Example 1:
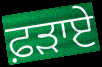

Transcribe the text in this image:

ਫ਼ੜਾਏ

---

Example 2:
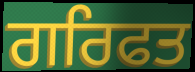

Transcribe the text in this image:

ਗਰਿਫਤ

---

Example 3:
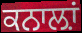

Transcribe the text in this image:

ਕਨਾਲ਼ਾਂ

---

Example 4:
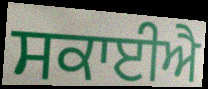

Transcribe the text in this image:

ਸਕਾਈਐ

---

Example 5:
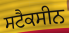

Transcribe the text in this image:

ਸਟੈਕਸੀਨ